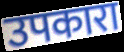
उपकारा